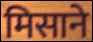
मिसाने